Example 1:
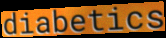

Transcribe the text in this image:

diabetics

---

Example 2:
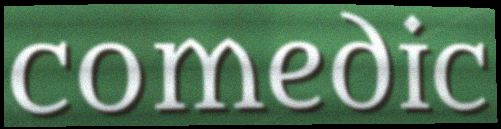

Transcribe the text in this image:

comedic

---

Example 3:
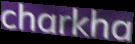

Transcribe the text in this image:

charkha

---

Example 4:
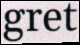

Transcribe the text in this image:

gret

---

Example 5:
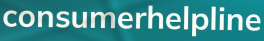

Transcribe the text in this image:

consumerhelpline